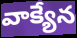
వాక్యేన